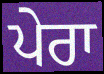
ਪੇਰਾ